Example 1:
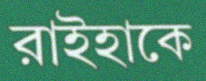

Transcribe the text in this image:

রাইহাকে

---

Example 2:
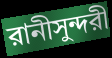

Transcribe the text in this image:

রানীসুন্দরী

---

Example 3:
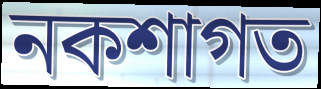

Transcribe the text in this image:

নকশাগত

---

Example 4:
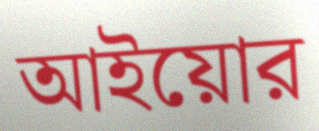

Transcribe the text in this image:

আইয়োর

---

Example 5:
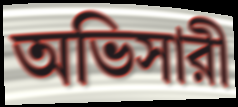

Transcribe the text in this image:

অভিসারী